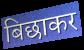
बिछाकर